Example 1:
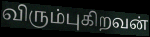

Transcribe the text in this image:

விரும்புகிறவன்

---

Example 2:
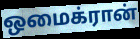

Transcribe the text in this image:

ஒமைக்ரான்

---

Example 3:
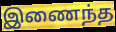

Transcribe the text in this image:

இணைந்த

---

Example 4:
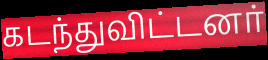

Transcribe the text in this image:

கடந்துவிட்டனர்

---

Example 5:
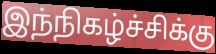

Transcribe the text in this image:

இந்நிகழ்ச்சிக்கு